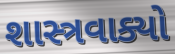
શાસ્ત્રવાક્યો